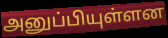
அனுப்பியுள்ளன